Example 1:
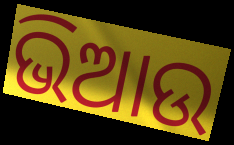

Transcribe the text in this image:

ଭିଆଉ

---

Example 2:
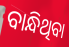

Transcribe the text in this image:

ବାନ୍ଧିଥିବା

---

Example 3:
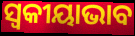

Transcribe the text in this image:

ସ୍ୱକୀୟାଭାବ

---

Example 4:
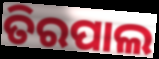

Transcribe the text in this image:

ତିରପାଲ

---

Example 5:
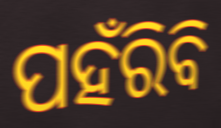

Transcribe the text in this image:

ପହଁରିବି